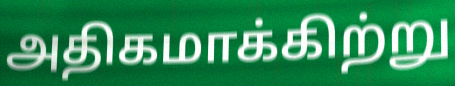
அதிகமாக்கிற்று